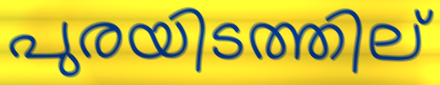
പുരയിടത്തില്